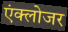
एंक्लोजर